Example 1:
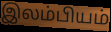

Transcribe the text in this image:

இலம்பியம்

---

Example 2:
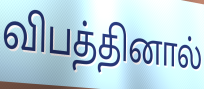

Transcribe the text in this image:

விபத்தினால்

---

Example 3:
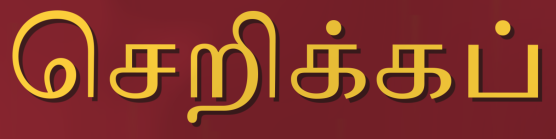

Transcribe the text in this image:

செறிக்கப்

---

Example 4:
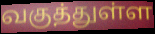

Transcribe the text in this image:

வகுத்துள்ள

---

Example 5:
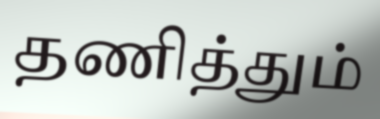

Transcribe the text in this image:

தணித்தும்